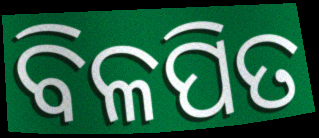
ବିଳପିତ